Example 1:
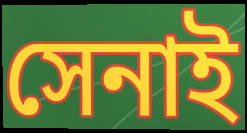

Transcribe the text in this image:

সেনাই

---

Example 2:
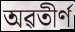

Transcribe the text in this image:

অৱতীৰ্ণ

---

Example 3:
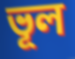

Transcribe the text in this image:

ভূল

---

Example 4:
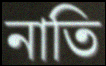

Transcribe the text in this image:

নাতি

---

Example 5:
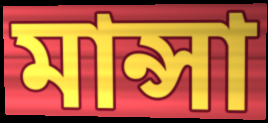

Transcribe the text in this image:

মান্সা